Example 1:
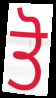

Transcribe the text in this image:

ਤੋ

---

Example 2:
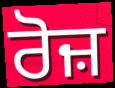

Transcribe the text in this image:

ਰੋਜ਼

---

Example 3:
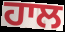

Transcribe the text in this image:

ਹਾਲ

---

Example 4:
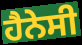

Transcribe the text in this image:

ਹੈਨੇਸੀ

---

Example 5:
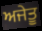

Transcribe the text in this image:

ਅਜੇਤੂ